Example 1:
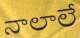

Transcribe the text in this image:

నాలాలే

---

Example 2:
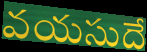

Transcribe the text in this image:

వయసుదే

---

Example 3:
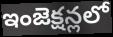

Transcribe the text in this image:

ఇంజెక్షన్లలో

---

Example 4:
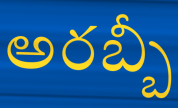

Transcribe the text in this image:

అరబ్బీ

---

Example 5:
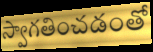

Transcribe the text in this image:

స్వాగతించడంతో